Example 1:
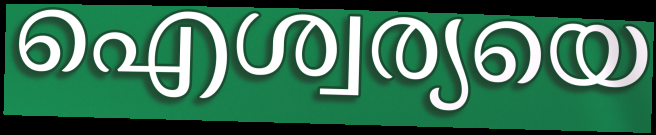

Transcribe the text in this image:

ഐശ്വര്യയെ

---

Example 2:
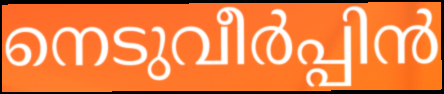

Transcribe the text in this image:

നെടുവീർപ്പിൻ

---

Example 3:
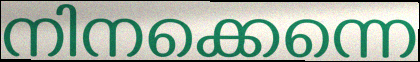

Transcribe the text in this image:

നിനക്കെന്നെ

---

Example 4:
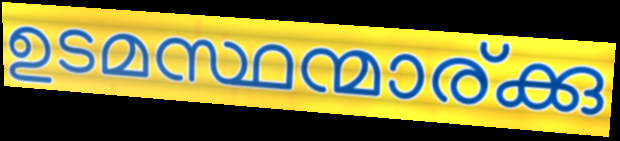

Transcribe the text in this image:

ഉടമസ്ഥന്മാര്ക്കു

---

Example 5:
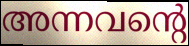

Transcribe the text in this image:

അന്നവന്റെ